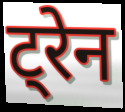
ट्रेन